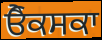
ਓੈਕਸਕਾ